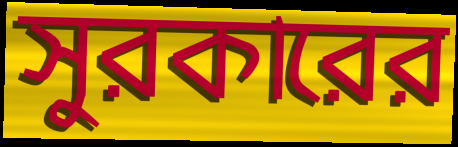
সুরকারের